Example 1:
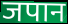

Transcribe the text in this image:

जपान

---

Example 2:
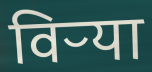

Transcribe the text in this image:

विऱ्या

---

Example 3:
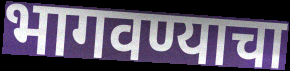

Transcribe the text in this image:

भागवण्याचा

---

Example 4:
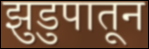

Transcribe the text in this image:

झुडुपातून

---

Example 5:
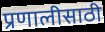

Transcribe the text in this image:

प्रणालीसाठी